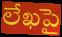
లేఖపై